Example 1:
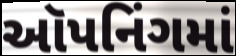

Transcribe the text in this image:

ઑપનિંગમાં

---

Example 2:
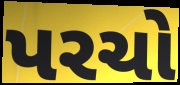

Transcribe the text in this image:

પરચો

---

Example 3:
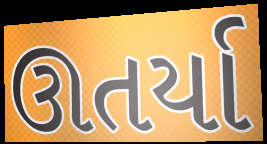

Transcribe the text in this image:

ઊતર્યા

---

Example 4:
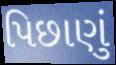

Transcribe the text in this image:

પિછાણું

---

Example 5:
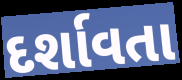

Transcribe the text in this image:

દર્શાવતા